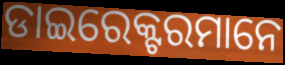
ଡାଇରେକ୍ଟରମାନେ